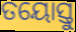
ତୟୋସ୍ତୁ